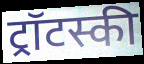
ट्रॉटस्की